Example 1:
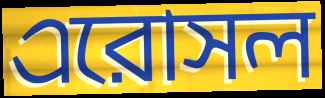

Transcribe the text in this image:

এরোসল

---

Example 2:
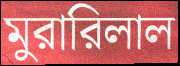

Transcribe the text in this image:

মুরারিলাল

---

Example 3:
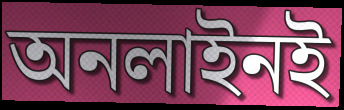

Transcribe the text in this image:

অনলাইনই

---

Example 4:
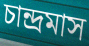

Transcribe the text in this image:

চান্দ্রমাস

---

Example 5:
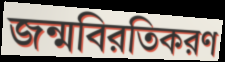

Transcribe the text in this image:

জন্মবিরতিকরণ